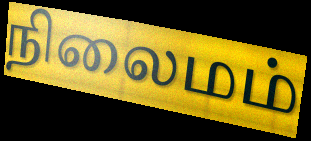
நிலைமம்